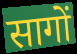
सागों